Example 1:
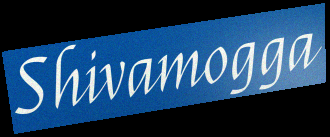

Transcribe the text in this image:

Shivamogga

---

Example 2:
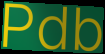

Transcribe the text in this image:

Pdb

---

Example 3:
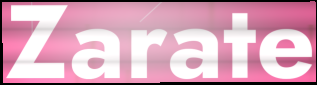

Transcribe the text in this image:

Zarate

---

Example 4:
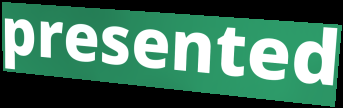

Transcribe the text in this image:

presented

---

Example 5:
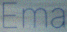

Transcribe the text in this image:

Ema